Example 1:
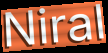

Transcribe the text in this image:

Niral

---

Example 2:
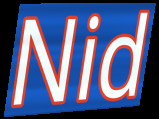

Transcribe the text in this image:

Nid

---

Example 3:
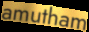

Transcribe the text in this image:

amutham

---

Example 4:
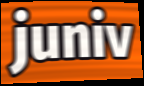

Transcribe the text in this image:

juniv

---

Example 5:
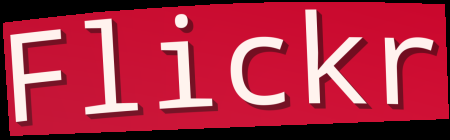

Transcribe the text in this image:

Flickr